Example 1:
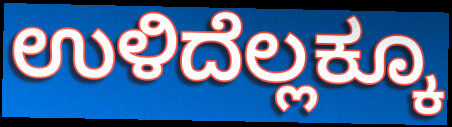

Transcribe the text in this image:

ಉಳಿದೆಲ್ಲಕ್ಕೂ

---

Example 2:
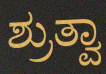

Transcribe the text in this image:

ಶ್ರುತ್ವಾ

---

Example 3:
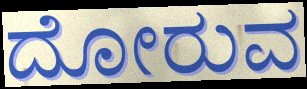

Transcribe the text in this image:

ದೋರುವ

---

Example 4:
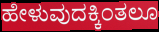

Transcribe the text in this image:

ಹೇಳುವುದಕ್ಕಿಂತಲೂ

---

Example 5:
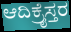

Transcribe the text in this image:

ಆದಿಕ್ರೈಸ್ತರ